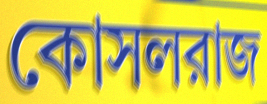
কোসলরাজ